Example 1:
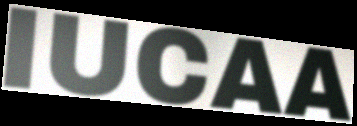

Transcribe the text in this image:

IUCAA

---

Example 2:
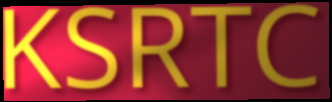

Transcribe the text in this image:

KSRTC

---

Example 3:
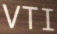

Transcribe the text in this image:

VTI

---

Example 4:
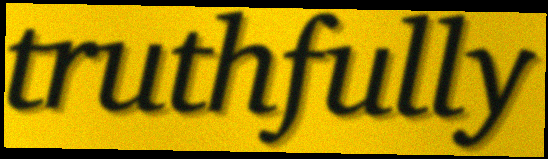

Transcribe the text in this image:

truthfully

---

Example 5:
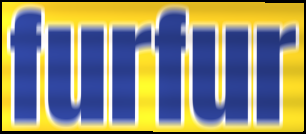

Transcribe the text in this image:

furfur